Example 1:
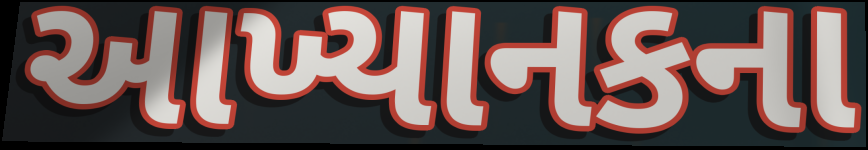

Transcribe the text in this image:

આખ્યાનકના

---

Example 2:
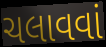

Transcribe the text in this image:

ચલાવવાં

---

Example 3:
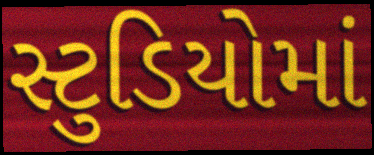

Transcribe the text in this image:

સ્ટુડિયોમાં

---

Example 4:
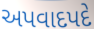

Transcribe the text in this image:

અપવાદપદે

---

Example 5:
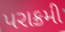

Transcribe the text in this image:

પરાક્રમી